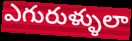
ఎగురుళ్ళులా